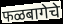
फळबागेचे